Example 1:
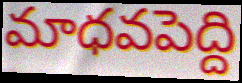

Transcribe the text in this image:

మాధవపెద్ది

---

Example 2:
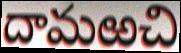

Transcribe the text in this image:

దామఱచి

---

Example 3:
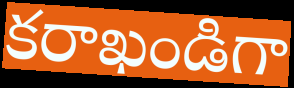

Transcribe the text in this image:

కరాఖండిగా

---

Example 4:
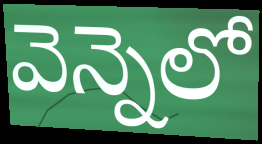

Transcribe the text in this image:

వెన్నెలో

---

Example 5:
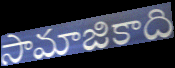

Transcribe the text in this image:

సామాజికాది